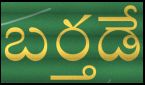
బర్తడే